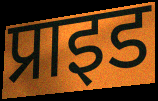
प्राइड